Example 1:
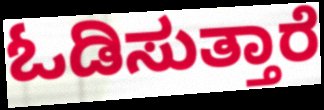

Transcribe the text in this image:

ಓಡಿಸುತ್ತಾರೆ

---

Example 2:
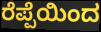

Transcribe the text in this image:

ರೆಪ್ಪೆಯಿಂದ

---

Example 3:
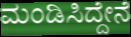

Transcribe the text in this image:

ಮಂಡಿಸಿದ್ದೇನೆ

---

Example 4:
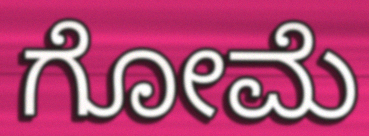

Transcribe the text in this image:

ಗೋಮೆ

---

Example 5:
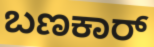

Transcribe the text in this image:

ಬಣಕಾರ್